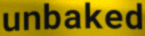
unbaked